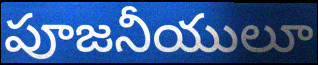
పూజనీయులూ